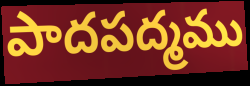
పాదపద్మము